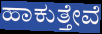
ಹಾಕುತ್ತೇವೆ